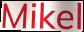
Mikel